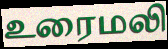
உரைமலி